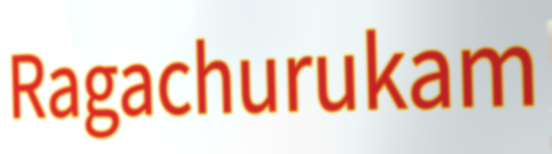
Ragachurukam